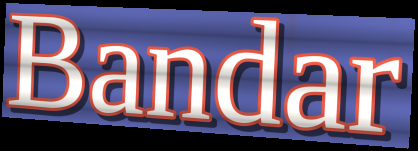
Bandar